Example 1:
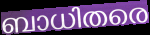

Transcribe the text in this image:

ബാധിതരെ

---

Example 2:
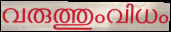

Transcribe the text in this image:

വരുത്തുംവിധം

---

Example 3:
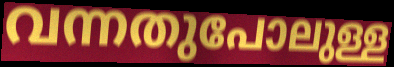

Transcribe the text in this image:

വന്നതുപോലുള്ള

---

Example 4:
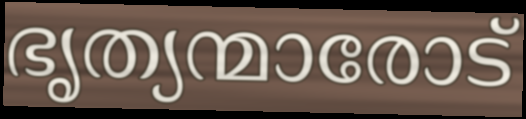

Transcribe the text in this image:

ഭൃത്യന്മാരോട്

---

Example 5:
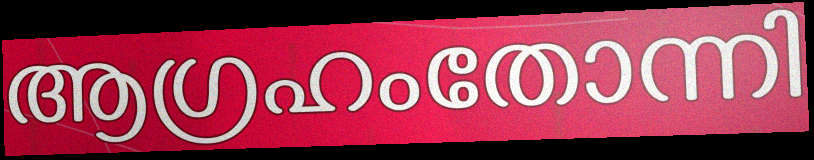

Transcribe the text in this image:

ആഗ്രഹംതോന്നി